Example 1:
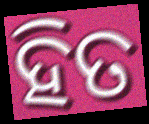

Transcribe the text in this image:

ହିତ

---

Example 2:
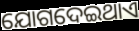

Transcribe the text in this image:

ଯୋଗଦେଇଥାଏ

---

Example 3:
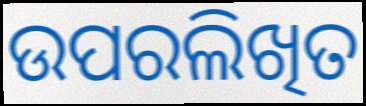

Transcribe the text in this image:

ଉପରଲିଖିତ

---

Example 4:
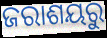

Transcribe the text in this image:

ଜରାଶୟରୁ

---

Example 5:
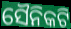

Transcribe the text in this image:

ସୈନିକଟି